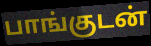
பாங்குடன்